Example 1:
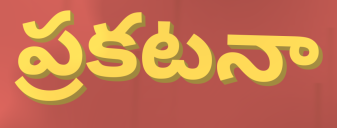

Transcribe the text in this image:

ప్రకటనా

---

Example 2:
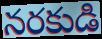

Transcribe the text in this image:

నరకుడి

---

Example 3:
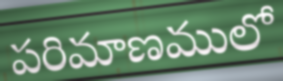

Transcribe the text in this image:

పరిమాణములో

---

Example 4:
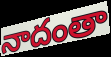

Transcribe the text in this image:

నాదంతా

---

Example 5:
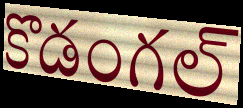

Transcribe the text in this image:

కొడంగల్